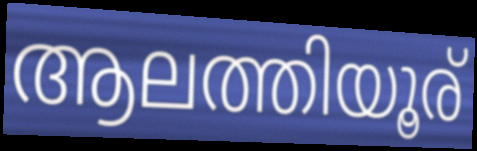
ആലത്തിയൂര്